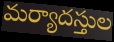
మర్యాదస్తుల